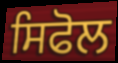
ਸਿਫੋਲ